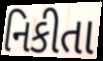
નિકીતા